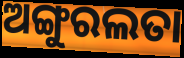
ଅଙ୍ଗୁରଲତା